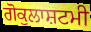
ਗੋਕੁਲਾਸ਼ਟਮੀ